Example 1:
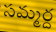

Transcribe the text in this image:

సమ్మర్ద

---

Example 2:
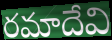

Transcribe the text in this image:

రమాదేవి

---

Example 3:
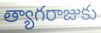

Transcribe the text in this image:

త్యాగరాజుకు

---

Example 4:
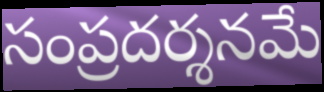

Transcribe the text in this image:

సంప్రదర్శనమే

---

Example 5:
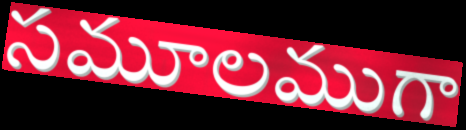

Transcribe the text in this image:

సమూలముగా